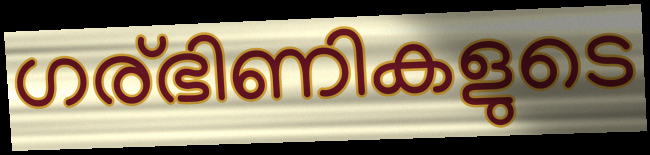
ഗര്ഭിണികളുടെ